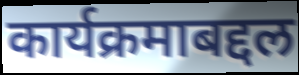
कार्यक्रमाबद्दल